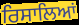
ਰਿਸਾਲਿਆਂ